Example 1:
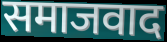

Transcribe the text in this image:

समाजवाद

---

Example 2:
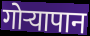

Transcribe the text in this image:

गोऱ्यापान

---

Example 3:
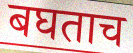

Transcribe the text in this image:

बघताच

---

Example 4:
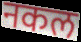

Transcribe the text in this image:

नकल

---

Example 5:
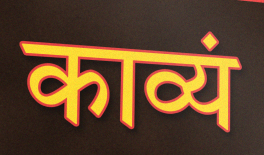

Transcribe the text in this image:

काव्यं